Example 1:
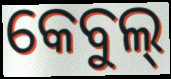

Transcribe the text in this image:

କେବୁଲ୍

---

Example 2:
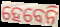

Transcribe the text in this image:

ହେବେନି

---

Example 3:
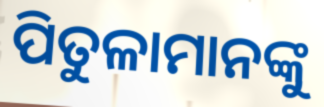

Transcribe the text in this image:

ପିତୁଳାମାନଙ୍କୁ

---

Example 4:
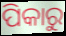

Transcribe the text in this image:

ପିକାରୁ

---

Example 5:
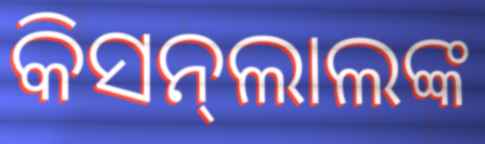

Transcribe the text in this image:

କିସନ୍‌ଲାଲଙ୍କ